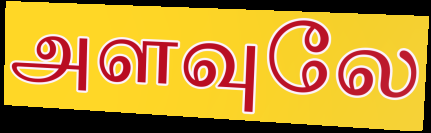
அளவுலே